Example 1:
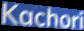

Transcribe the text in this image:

Kachori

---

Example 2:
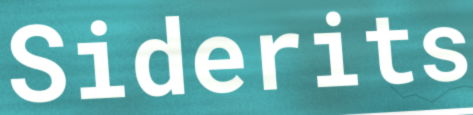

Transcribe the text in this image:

Siderits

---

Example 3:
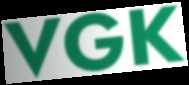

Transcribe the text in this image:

VGK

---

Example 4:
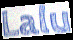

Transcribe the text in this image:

Lalu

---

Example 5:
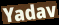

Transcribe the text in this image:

Yadav